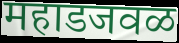
महाडजवळ